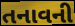
તનાવની